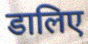
डालिए